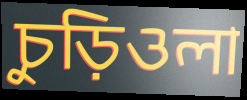
চুড়িওলা